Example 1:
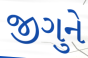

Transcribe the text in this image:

જીગુને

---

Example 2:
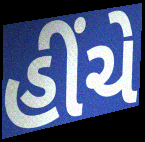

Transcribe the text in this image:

હીંચે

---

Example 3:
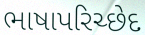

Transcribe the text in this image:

ભાષાપરિચ્છેદ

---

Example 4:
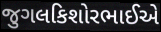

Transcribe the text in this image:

જુગલકિશોરભાઈએ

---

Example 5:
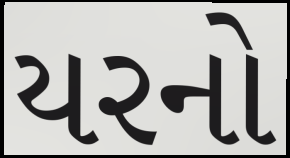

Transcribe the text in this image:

યરનો